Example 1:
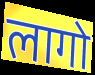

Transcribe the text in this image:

लागो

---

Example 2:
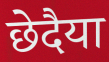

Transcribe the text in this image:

छेदैया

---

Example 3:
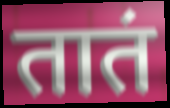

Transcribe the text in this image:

तातं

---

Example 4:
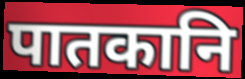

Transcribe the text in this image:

पातकानि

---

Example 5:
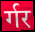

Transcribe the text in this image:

र्गर